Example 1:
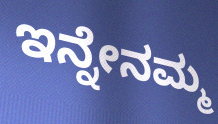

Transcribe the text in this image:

ಇನ್ನೇನಮ್ಮ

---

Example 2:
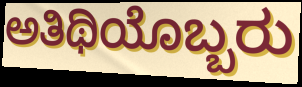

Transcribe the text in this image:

ಅತಿಥಿಯೊಬ್ಬರು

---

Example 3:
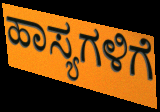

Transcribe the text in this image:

ಹಾಸ್ಯಗಳಿಗೆ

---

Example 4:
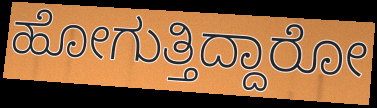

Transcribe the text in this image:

ಹೋಗುತ್ತಿದ್ದಾರೋ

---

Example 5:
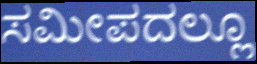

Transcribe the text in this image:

ಸಮೀಪದಲ್ಲೂ